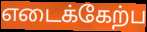
எடைக்கேற்ப